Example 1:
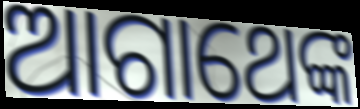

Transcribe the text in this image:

ଆଗାଥେଙ୍କ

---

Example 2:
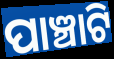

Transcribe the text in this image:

ପାଞ୍ଚାଟି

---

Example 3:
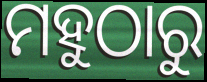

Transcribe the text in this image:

ମହୁଠାରୁ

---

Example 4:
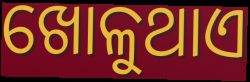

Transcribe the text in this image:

ଖୋଳୁଥାଏ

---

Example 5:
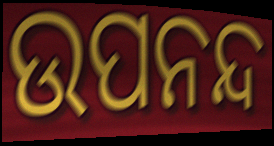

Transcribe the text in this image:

ଉପନନ୍ଦ